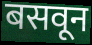
बसवून